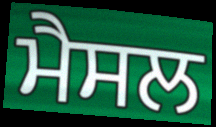
ਮੈਸਲ